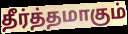
தீர்த்தமாகும்